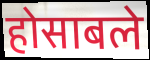
होसाबले